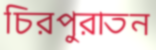
চিরপুরাতন